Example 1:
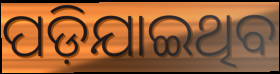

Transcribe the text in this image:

ପଡ଼ିଯାଇଥିବ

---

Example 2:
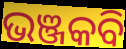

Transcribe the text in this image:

ଭଞ୍ଜକବି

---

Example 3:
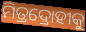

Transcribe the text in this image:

ମିତ୍ରଦ୍ରୋହୀକୁ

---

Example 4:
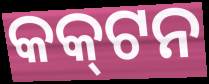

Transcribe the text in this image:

କକ୍‌ଟନ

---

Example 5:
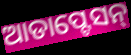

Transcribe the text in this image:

ଆଡାପ୍ଟେସନ୍